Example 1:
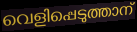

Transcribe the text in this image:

വെളിപ്പെടുത്താന്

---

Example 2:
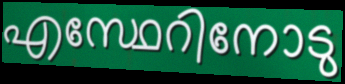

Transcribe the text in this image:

എസ്ഥേറിനോടു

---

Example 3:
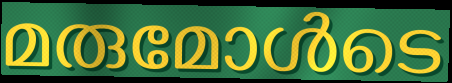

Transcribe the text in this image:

മരുമോൾടെ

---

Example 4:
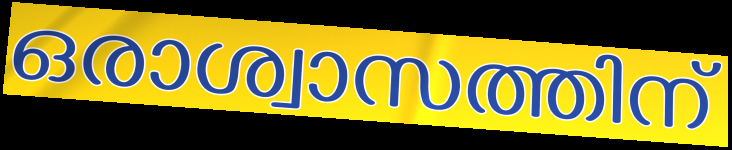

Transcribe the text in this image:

ഒരാശ്വാസത്തിന്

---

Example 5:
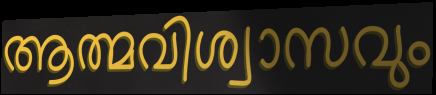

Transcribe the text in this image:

ആത്മവിശ്വാസവും